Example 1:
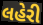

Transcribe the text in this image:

લહેરી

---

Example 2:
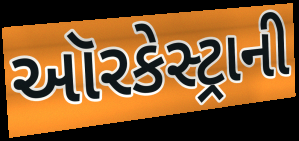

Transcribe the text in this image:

ઑરકેસ્ટ્રાની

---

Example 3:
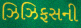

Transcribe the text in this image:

ઝિઝિફસની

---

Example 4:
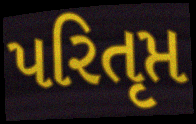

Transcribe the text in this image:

પરિતૃપ્ત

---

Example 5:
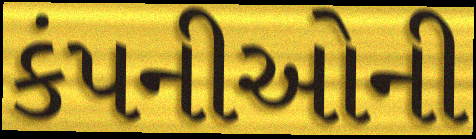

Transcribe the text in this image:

કંપનીઓની